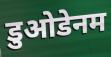
डुओडेनम